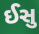
ઈસુ